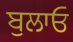
ਬੁਲਾਓ